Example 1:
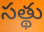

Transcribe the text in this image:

సత్థు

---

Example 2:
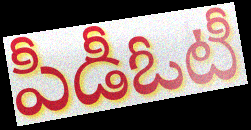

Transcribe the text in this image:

పీడీఓటీ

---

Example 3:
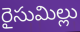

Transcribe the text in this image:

రైసుమిల్లు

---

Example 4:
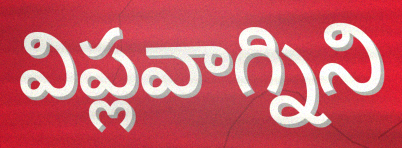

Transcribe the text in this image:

విప్లవాగ్నిని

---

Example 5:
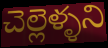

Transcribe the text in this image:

చెల్లెళ్ళని